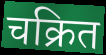
चक्रित